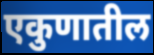
एकुणातील